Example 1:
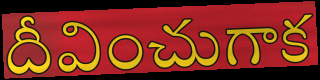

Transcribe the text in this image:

దీవించుగాక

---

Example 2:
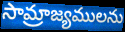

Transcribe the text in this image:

సామ్రాజ్యములను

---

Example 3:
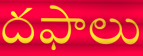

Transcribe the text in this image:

దఫాలు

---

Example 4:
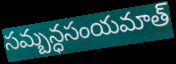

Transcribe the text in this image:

సమ్బన్ధసంయమాత్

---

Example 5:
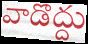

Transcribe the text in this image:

వాడొద్దు